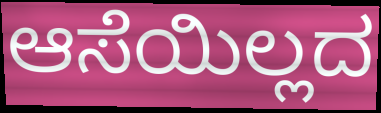
ಆಸೆಯಿಲ್ಲದ